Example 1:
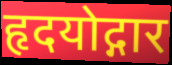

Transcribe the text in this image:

हृदयोद्गार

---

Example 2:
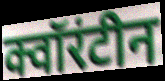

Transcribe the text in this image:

क्वॉरंटीन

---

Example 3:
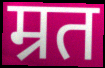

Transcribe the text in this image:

म्रत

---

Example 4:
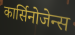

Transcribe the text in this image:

कार्सिनोजेन्स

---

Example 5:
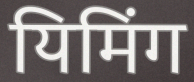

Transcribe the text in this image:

यिमिंग